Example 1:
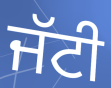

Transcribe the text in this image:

ਜੱਟੀ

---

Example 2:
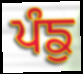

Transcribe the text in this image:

ਪੰਙੁ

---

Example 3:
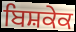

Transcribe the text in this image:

ਬਿਸ਼ਕੇਕ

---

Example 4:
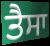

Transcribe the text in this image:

ਤੈਸਾ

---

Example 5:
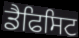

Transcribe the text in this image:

ਡੈਫਿਸਿਟ